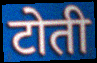
टोती